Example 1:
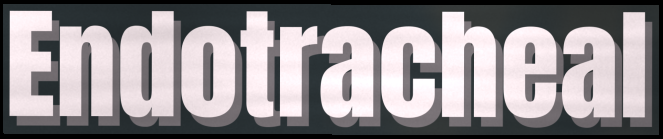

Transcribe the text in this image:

Endotracheal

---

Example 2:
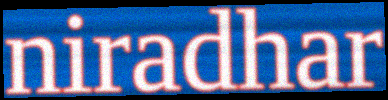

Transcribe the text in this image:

niradhar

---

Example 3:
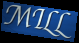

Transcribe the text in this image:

MILL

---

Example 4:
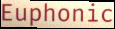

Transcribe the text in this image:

Euphonic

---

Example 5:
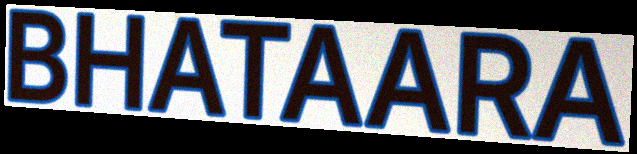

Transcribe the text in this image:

BHATAARA